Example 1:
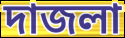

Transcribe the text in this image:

দাজলা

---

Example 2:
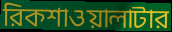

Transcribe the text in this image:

রিকশাওয়ালাটার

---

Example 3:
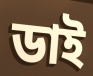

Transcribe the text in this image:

ডাই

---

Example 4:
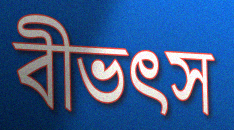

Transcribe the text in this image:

বীভৎস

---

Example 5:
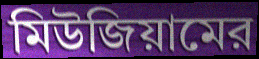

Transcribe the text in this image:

মিউজিয়ামের